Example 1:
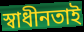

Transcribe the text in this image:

স্বাধীনতাই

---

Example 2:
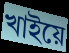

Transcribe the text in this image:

খাইয়ে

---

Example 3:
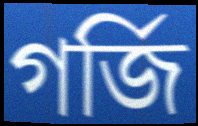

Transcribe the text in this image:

গৰ্জি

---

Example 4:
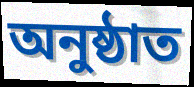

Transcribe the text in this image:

অনুষ্ঠাত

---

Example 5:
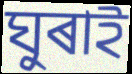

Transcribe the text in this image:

ঘুৰাই